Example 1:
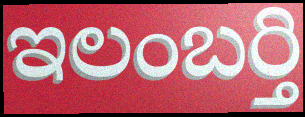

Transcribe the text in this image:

ఇలంబర్తి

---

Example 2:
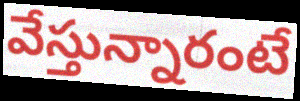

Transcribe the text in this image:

వేస్తున్నారంటే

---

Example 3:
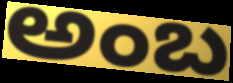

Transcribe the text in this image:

అంబ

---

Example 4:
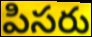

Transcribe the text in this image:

పిసరు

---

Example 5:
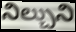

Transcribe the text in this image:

నిల్చుని